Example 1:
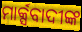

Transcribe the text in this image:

ମାର୍କ୍ସବାଦୀଙ୍କ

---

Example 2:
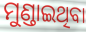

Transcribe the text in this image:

ମୁଣ୍ଡାଇଥିବା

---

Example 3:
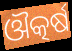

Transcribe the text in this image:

ଔତ୍କର୍ଷ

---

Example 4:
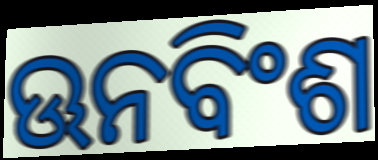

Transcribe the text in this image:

ଊନବିଂଶ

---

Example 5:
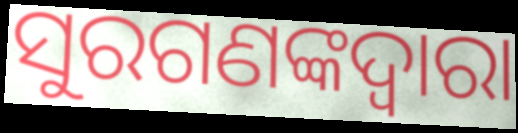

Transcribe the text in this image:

ସୁରଗଣଙ୍କଦ୍ୱାରା